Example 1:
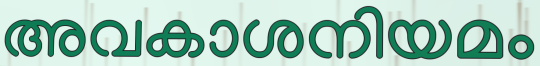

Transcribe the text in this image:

അവകാശനിയമം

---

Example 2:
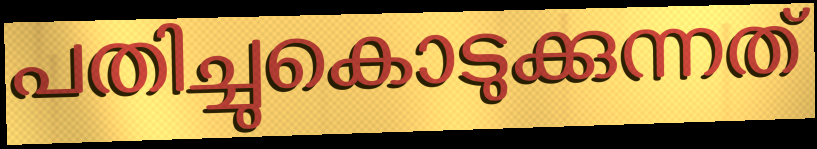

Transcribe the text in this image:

പതിച്ചുകൊടുക്കുന്നത്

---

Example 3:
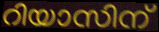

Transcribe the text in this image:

റിയാസിന്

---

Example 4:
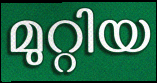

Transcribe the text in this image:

മുറ്റിയ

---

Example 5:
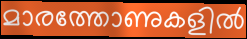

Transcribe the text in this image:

മാരത്തോണുകളിൽ